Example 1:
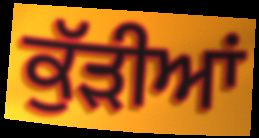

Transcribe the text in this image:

ਕੁੱੜੀਆਂ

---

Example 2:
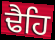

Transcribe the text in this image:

ਢੈਹਿ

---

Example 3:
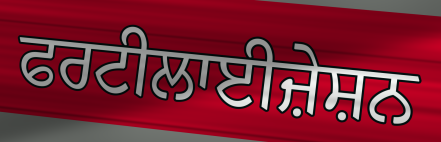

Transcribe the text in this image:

ਫਰਟੀਲਾਈਜ਼ੇਸ਼ਨ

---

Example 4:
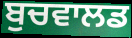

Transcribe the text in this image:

ਬੁਚਵਾਲਡ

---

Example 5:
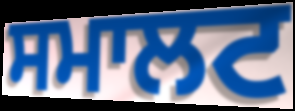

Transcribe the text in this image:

ਸਮਾਲਟ